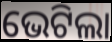
ଭେଟିଲା